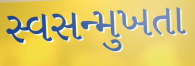
સ્વસન્મુખતા